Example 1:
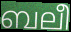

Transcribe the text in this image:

ബലീ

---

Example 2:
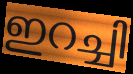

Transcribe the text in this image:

ഇറച്ചി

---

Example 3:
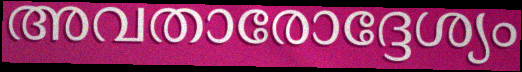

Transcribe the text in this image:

അവതാരോദ്ദേശ്യം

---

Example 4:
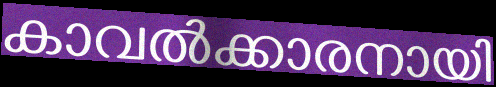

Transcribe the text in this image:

കാവൽക്കാരനായി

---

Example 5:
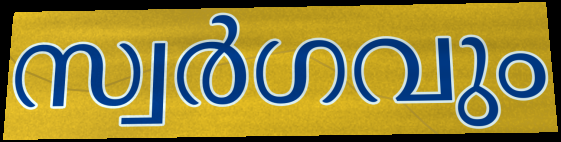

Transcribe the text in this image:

സ്വർഗവും